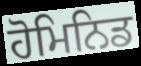
ਹੋਮਿਨਿਡ